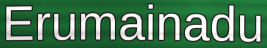
Erumainadu